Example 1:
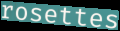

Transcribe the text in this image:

rosettes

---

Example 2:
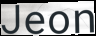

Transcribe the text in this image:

Jeon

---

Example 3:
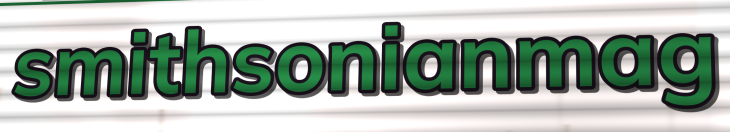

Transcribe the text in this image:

smithsonianmag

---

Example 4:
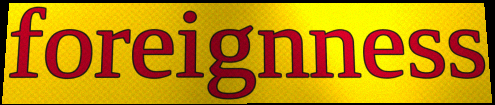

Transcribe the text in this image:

foreignness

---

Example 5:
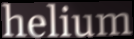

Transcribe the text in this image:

helium